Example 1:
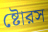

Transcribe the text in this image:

ষ্টোরস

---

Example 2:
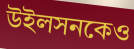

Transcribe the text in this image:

উইলসনকেও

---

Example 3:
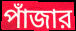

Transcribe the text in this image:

পাঁজার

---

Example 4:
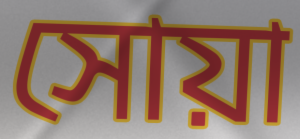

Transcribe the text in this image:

সোয়া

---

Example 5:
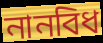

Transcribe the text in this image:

নানবিধ